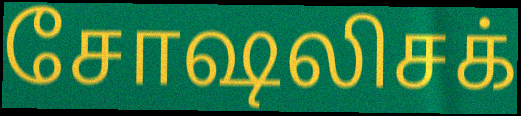
சோஷலிசக்